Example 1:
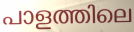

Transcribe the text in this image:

പാളത്തിലെ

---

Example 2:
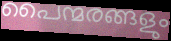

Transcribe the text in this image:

പൈന്മരങ്ങളും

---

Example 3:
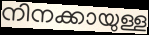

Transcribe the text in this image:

നിനക്കായുള്ള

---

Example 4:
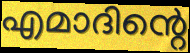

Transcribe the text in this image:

എമാദിന്റെ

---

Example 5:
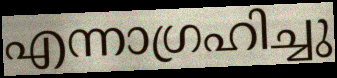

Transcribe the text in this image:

എന്നാഗ്രഹിച്ചു